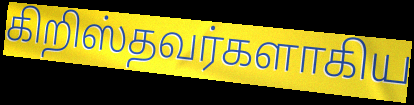
கிறிஸ்தவர்களாகிய